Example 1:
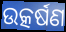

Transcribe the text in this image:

ଉତ୍କର୍ଷଣ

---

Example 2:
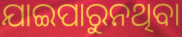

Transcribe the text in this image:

ଯାଇପାରୁନଥିବା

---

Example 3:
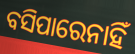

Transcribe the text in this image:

ବସିପାରେନାହିଁ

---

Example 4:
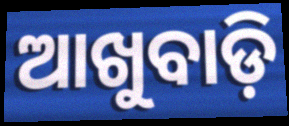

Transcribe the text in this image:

ଆଖୁବାଡ଼ି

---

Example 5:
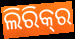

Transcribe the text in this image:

ଲିରିକ୍‍ର